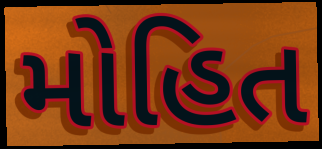
મોહિત